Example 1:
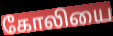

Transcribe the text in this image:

கோலியை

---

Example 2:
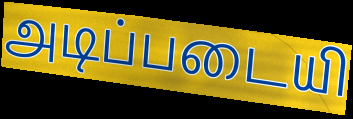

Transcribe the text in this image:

அடிப்படையி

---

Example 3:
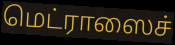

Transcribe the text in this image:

மெட்ராஸைச்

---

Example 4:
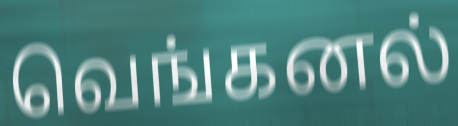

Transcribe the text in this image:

வெங்கனல்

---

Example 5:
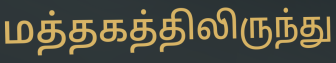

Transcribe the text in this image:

மத்தகத்திலிருந்து